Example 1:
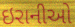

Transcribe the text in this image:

ઇરાનીઓ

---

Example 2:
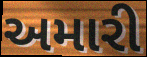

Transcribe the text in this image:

અમારી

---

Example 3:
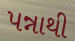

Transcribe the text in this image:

પન્નાથી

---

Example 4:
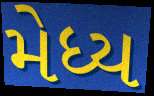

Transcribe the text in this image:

મેધ્ય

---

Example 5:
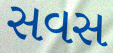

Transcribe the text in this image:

સવસ